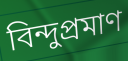
বিন্দুপ্রমাণ